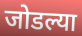
जोडल्या